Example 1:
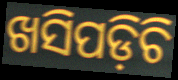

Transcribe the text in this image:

ଖସିପଡ଼ିଚି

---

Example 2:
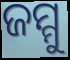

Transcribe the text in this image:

ଜମ୍ମୁ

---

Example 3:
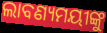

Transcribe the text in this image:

ଲାବଣ୍ୟମୟୀଙ୍କୁ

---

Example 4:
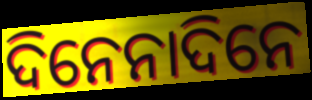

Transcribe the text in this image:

ଦିନେନାଦିନେ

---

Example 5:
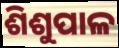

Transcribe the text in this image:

ଶିଶୁପାଳ